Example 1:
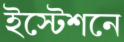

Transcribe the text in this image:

ইস্টেশনে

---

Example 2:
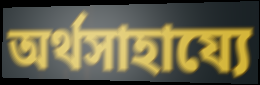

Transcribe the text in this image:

অর্থসাহায্যে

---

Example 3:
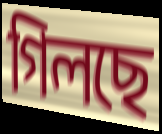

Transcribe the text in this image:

গিলছে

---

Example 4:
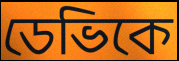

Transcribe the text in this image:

ডেভিকে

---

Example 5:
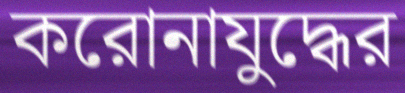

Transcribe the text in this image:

করোনাযুদ্ধের